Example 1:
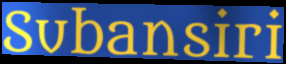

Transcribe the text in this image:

Subansiri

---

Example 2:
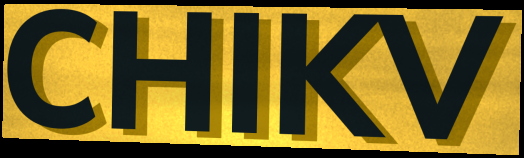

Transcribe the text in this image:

CHIKV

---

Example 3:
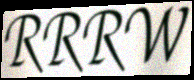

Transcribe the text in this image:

RRRW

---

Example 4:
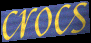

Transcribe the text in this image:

crocs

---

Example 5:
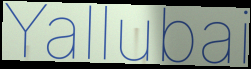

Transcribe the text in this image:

Yallubai